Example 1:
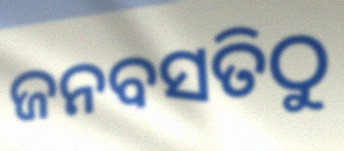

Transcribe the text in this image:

ଜନବସତିଠୁ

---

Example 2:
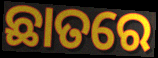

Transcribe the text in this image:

ଛାତରେ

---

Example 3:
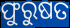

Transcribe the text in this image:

ଫୁରୁଷତ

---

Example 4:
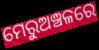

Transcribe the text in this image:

ମେରୁଅଞ୍ଚଳରେ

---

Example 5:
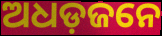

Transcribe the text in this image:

ଅଧଡ଼ଜନେ